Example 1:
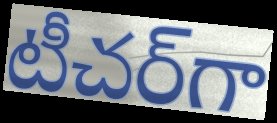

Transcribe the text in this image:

టీచర్‌గా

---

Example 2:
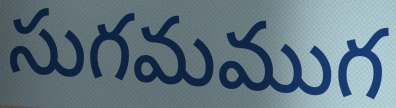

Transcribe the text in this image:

సుగమముగ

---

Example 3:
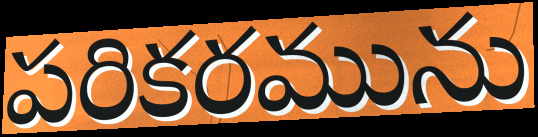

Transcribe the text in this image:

పరికరమును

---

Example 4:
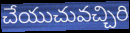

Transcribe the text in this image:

చేయుచువచ్చిరి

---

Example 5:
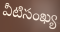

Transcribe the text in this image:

వీటిసంఖ్య